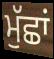
ਮੁੱਛਾਂ